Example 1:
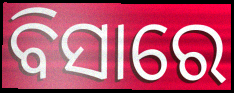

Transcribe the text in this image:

ବିସାରେ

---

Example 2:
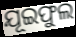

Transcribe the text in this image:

ଯୂଇଫୁଲ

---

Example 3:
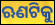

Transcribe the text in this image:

ଋଣଟିକୁ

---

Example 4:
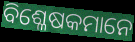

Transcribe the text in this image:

ବିଶ୍ଳେଷକମାନେ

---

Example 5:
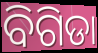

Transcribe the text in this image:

ବିଗିଡା